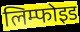
लिम्फोइड